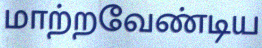
மாற்றவேண்டிய